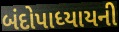
બંદોપાધ્યાયની